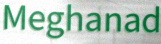
Meghanad